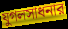
যুগলসাধনার